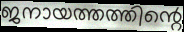
ജനായത്തത്തിന്റെ